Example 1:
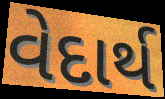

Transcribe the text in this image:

વેદાર્થ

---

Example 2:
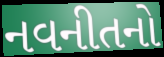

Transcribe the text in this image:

નવનીતનો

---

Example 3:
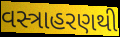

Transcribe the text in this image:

વસ્ત્રાહરણથી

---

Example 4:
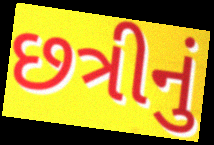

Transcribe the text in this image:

છત્રીનું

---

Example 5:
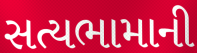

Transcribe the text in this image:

સત્યભામાની